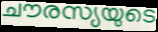
ചൗരസ്യയുടെ